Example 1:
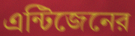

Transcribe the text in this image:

এন্টিজেনের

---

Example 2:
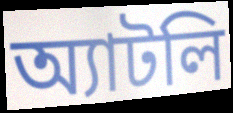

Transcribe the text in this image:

অ্যাটলি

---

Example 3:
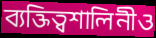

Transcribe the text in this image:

ব্যক্তিত্বশালিনীও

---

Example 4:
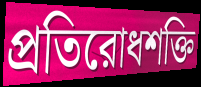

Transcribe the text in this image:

প্রতিরোধশক্তি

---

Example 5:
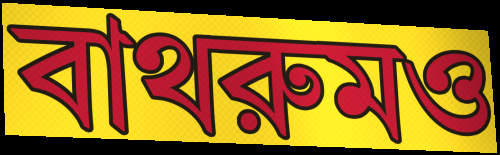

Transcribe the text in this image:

বাথরুমও